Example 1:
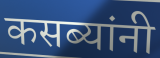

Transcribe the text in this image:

कसब्यांनी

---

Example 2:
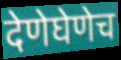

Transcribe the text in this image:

देणेघेणेच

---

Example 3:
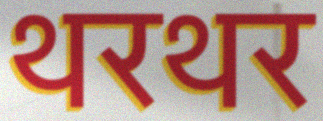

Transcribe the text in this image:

थरथर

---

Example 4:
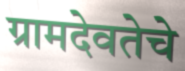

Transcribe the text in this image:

ग्रामदेवतेचे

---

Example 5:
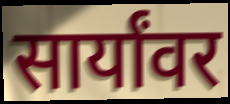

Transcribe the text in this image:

सार्यांवर